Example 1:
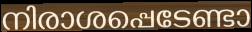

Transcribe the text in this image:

നിരാശപ്പെടേണ്ടാ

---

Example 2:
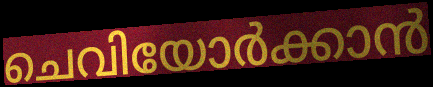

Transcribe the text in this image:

ചെവിയോർക്കാൻ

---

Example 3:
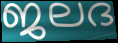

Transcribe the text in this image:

ജലദ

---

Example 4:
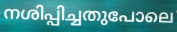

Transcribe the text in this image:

നശിപ്പിച്ചതുപോലെ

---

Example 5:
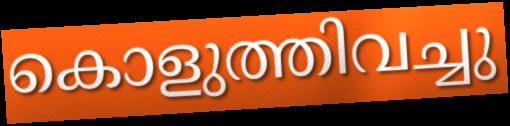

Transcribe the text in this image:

കൊളുത്തിവച്ചു